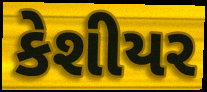
કેશીયર